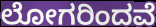
ಲೋಗರಿಂದವೆ